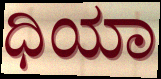
ಧಿಯಾ